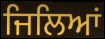
ਜਿਲਿਆਂ